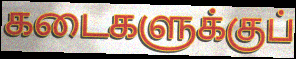
கடைகளுக்குப்